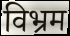
विभ्रम